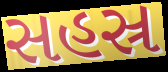
સહસ્ર